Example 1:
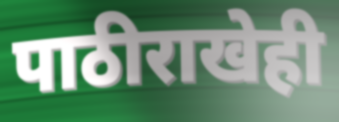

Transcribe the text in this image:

पाठीराखेही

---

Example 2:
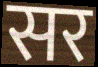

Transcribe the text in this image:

सर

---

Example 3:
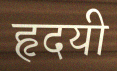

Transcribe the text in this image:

हृदयी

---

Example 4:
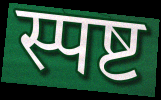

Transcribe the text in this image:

स्पष्ट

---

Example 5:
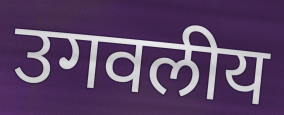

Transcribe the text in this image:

उगवलीय